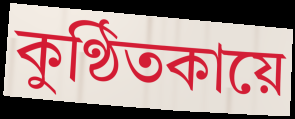
কুণ্ঠিতকায়ে